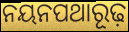
ନୟନପଥାରୂଢ଼